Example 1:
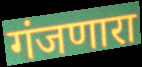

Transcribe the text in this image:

गंजणारा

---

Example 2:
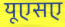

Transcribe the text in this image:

यूएसए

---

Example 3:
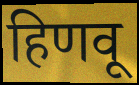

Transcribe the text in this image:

हिणवू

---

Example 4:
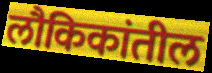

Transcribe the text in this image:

लौकिकांतील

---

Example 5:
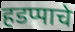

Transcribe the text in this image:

हडप्पाचे